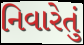
નિવારેતું